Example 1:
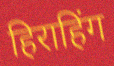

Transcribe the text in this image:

हिराहिंग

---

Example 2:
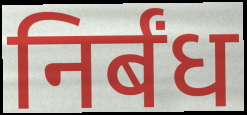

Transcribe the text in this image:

निर्बंध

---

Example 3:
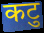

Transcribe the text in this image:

कटु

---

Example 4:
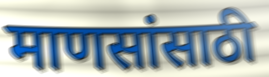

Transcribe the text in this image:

माणसांसाठी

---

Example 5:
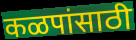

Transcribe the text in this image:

कळपांसाठी